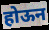
होऊन